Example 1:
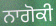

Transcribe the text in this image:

ਨਾਗੋਕੀ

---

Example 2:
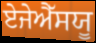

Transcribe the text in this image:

ਏਜੇਐੱਸਯੂ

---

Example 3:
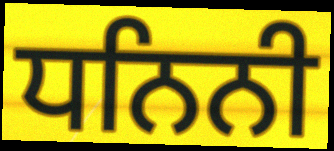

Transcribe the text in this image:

ਧਨਿਨੀ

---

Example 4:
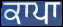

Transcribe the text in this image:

ਕਾਪਾ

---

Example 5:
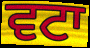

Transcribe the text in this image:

ਵਟਾ